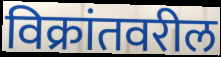
विक्रांतवरील